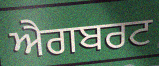
ਐਗਬਰਟ